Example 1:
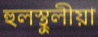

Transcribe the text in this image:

হুলস্থুলীয়া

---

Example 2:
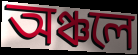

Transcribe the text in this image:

অঞ্চলে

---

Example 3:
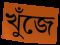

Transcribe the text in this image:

খুঁজে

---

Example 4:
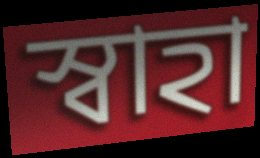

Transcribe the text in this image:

স্বাহা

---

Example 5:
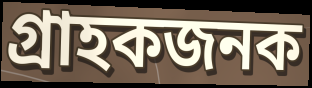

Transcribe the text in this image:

গ্ৰাহকজনক